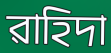
ৱাহিদা